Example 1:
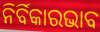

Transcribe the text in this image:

ନିର୍ବିକାରଭାବ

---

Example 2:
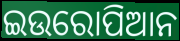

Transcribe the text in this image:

ଇଉରୋପିଆନ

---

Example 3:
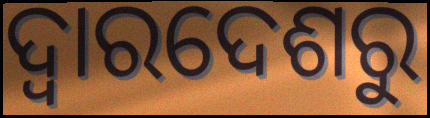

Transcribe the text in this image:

ଦ୍ଵାରଦେଶରୁ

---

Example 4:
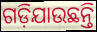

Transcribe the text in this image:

ଗଡ଼ିଯାଉଛନ୍ତି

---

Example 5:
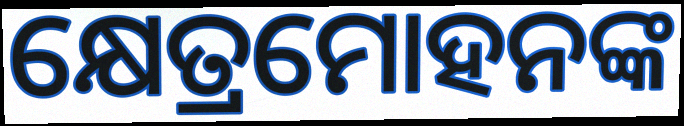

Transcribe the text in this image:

କ୍ଷେତ୍ରମୋହନଙ୍କ